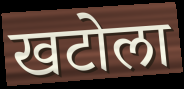
खटोला